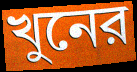
খুনের